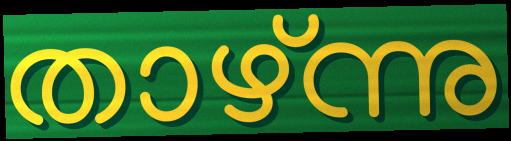
താഴ്ന്നു